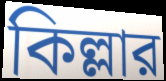
কিল্লার